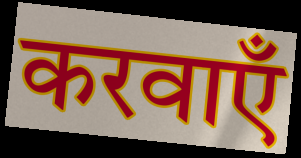
करवाएँ